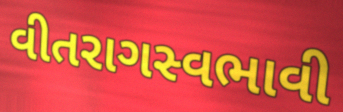
વીતરાગસ્વભાવી